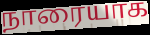
நாரையாக